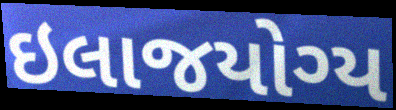
ઇલાજયોગ્ય